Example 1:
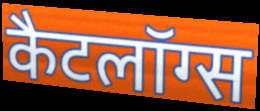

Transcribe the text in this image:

कैटलॉग्स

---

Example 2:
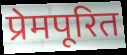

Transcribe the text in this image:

प्रेमपूरित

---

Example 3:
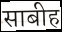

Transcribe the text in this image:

साबीह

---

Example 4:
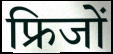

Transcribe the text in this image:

फ्रिजों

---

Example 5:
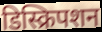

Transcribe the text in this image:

डिस्क्रिपशन